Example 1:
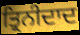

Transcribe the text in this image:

ਤ੍ਰਿਨੀਦਾਦ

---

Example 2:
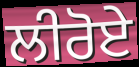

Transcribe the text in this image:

ਲੀਰੋਏ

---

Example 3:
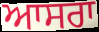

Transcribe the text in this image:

ਆਸਰਾ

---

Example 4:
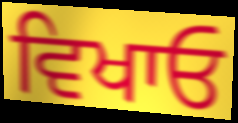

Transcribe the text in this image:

ਵਿਖਾਓ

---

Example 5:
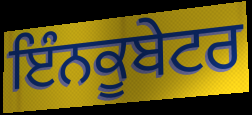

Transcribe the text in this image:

ਇੰਨਕੂਬੇਟਰ